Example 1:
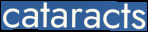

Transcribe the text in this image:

cataracts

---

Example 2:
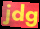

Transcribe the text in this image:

jdg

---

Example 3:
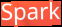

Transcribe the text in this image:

Spark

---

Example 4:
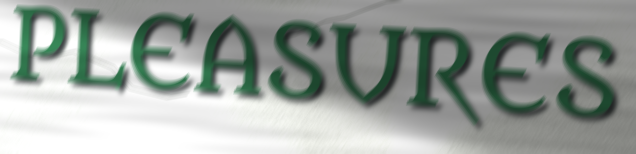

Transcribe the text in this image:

PLEASURES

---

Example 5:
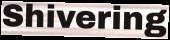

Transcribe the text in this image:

Shivering